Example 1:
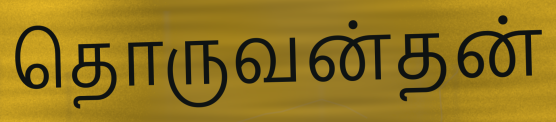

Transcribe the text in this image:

தொருவன்தன்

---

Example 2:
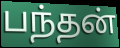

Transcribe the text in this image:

பந்தன்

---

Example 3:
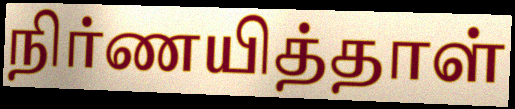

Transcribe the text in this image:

நிர்ணயித்தாள்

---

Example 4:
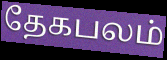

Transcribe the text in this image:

தேகபலம்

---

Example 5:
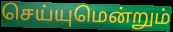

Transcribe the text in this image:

செய்யுமென்றும்